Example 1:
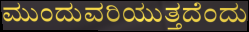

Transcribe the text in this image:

ಮುಂದುವರಿಯುತ್ತದೆಂದು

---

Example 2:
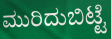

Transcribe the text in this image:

ಮುರಿದುಬಿಟ್ಟೆ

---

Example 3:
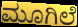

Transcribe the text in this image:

ಮೂಗಿಲೆ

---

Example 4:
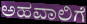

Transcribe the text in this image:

ಅಹವಾಲಿಗೆ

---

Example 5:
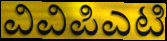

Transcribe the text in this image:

ವಿವಿಪಿಎಟಿ